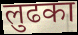
लुढका